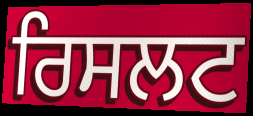
ਰਿਸਲਟ